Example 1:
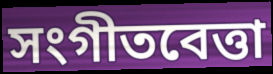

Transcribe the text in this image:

সংগীতবেত্তা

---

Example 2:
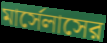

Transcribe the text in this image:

মার্সেলাসের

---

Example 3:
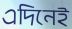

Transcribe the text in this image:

এদিনেই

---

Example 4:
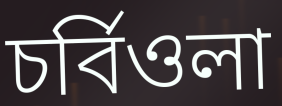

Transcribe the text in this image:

চর্বিওলা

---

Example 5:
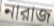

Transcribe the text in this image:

নারাজ